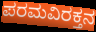
ಪರಮವಿರಕ್ತನ